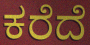
ಕರೆದೆ